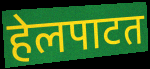
हेलपाटत